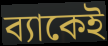
ব্যাকেই